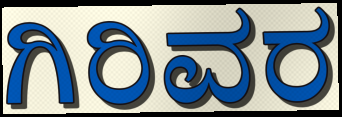
ಗಿರಿವರ